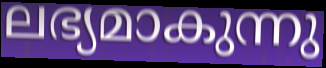
ലഭ്യമാകുന്നു